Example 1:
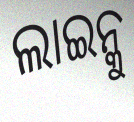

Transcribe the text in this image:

ଲାଇନ୍କୁ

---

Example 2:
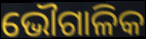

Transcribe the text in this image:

ଭୌଗାଳିକ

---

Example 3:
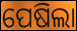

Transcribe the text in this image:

ପେଷିଲା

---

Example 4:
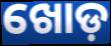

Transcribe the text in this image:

ଖୋଡ଼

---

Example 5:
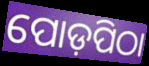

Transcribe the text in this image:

ପୋଡ଼ପିଠା